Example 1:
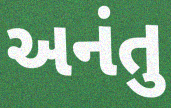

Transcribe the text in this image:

અનંતુ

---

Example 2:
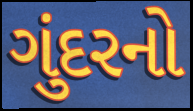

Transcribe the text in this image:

ગુંદરનો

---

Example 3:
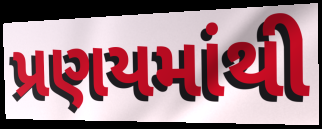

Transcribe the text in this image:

પ્રણયમાંથી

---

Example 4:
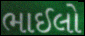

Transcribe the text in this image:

ભાઈલો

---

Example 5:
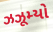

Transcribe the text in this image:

ઝઝૂમ્યો